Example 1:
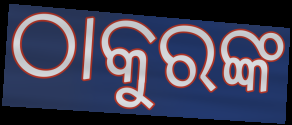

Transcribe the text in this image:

ଠାକୁରଙ୍କ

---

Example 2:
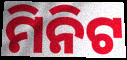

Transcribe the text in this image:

ମିନିଟ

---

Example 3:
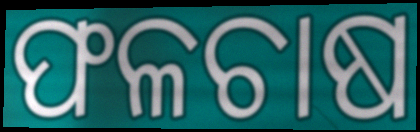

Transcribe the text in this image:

ଫଳଚାଷ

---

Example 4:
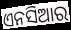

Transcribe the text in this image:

ଏନସିଆର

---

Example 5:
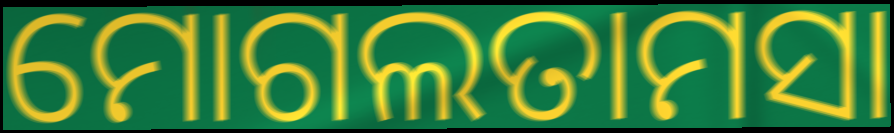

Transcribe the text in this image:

ମୋଗଲତାମସା